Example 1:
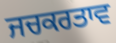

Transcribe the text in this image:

ਜਚਕਰਤਾਵ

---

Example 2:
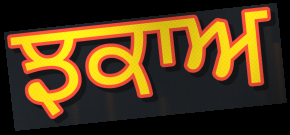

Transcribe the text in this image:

ਝਕਾਅ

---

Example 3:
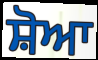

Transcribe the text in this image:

ਸ਼ੋਆ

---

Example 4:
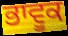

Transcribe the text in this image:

ਭਾਵੂਕ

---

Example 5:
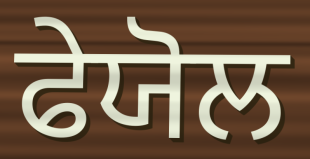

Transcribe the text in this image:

ਫੇਯੋਲ